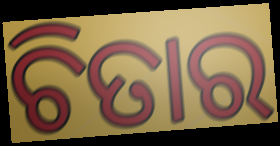
ଚିତାର